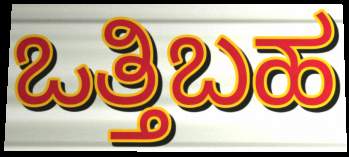
ಒತ್ತಿಬಹ